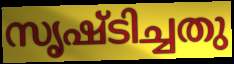
സൃഷ്ടിച്ചതു